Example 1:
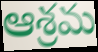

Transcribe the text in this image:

ఆశ్రమ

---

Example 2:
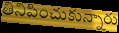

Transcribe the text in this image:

తినిపించుకున్నారు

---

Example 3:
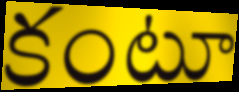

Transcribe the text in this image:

కంటూ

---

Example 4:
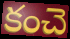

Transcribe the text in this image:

కంచె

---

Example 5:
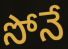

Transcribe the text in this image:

సోనే